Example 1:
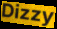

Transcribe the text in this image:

Dizzy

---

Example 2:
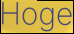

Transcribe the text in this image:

Hoge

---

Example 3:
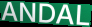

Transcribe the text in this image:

ANDAL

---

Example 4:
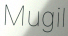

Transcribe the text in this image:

Mugil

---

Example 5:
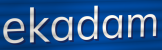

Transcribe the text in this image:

ekadam